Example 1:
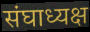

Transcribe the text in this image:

संघाध्यक्ष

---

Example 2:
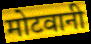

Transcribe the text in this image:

मोटवानी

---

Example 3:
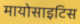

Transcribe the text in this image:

मायोसाइटिस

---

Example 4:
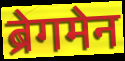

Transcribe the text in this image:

ब्रेगमेन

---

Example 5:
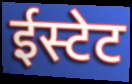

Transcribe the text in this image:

ईस्टेट